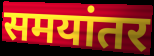
समयांतर